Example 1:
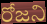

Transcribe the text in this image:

రోజని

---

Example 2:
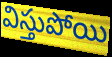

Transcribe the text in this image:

విస్తుపోయి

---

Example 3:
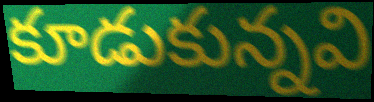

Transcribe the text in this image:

కూడుకున్నవి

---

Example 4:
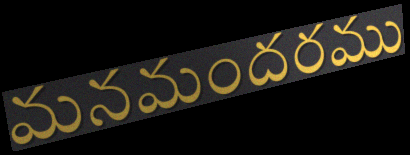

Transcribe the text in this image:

మనమందరము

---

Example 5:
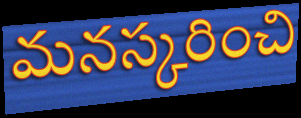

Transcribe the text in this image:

మనస్కరించి